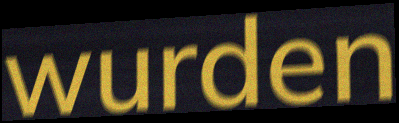
wurden